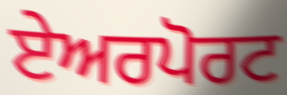
ਏਅਰਪੋਰਟ